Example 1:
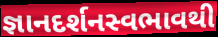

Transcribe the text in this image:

જ્ઞાનદર્શનસ્વભાવથી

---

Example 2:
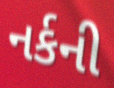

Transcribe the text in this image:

નર્કની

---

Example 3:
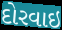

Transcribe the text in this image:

દોરવાઇ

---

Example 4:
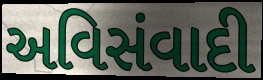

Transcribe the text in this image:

અવિસંવાદી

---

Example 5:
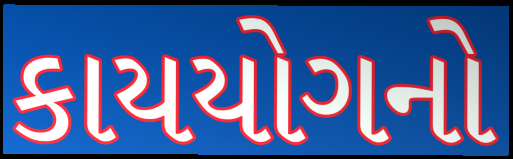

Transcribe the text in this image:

કાયયોગનો